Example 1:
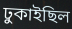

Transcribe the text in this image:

ঢুকাইছিল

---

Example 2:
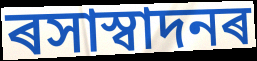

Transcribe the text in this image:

ৰসাস্বাদনৰ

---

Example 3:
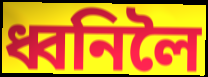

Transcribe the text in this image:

ধ্বনিলৈ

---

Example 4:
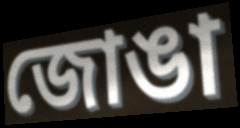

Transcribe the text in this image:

জোঙা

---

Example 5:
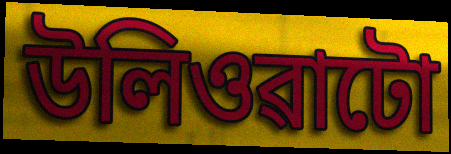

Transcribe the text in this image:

উলিওৱাটো